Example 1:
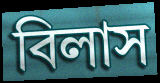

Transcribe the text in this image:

বিলাস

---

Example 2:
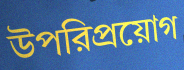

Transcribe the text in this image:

উপরিপ্রয়োগ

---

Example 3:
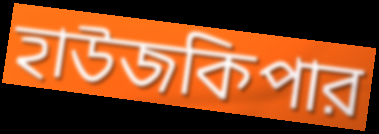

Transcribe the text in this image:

হাউজকিপার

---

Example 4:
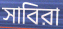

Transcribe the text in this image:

সাবিরা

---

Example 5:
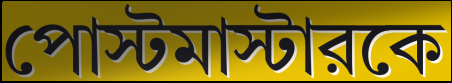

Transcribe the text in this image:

পোস্টমাস্টারকে